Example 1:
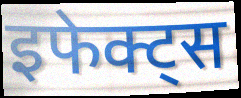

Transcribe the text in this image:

इफेक्ट्स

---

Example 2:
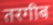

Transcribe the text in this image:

तरगीब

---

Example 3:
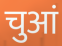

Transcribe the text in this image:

चुआं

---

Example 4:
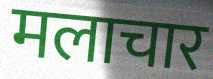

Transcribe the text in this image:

मलाचार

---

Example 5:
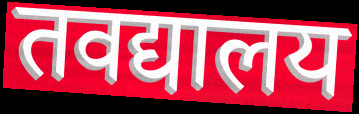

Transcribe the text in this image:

तवद्यालय